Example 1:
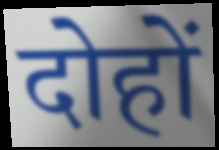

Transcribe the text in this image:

दोहों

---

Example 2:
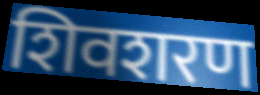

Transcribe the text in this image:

शिवशरण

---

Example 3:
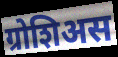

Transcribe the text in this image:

ग्रोशिअस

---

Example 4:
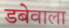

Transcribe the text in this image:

डबेवाला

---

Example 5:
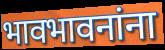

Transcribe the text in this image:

भावभावनांना